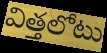
విత్తలోటు